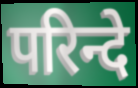
परिन्दे